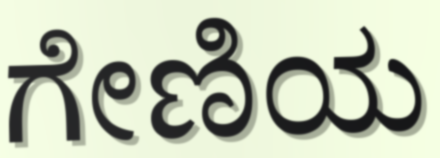
ಗೇಣಿಯ